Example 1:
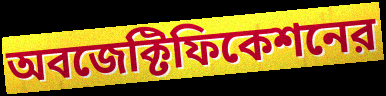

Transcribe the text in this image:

অবজেক্টিফিকেশনের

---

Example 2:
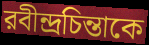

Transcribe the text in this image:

রবীন্দ্রচিন্তাকে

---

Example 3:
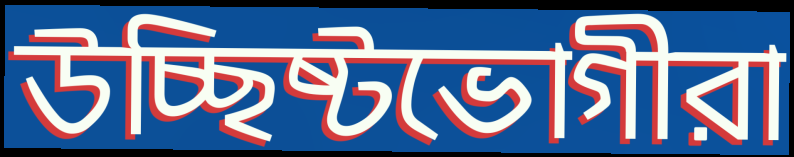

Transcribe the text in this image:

উচ্ছিষ্টভোগীরা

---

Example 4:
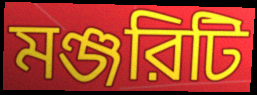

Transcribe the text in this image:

মঞ্জরিটি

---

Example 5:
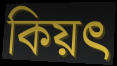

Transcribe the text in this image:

কিয়ৎ